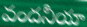
వందనీయా